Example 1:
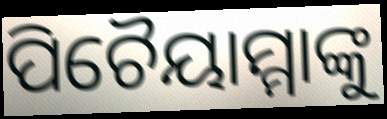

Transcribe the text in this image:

ପିଚୈୟାମ୍ମାଙ୍କୁ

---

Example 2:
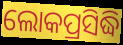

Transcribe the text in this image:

ଲୋକପ୍ରସିଦ୍ଧି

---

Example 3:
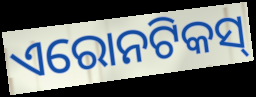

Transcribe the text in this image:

ଏରୋନଟିକସ୍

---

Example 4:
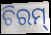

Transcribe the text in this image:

ଚିରମ୍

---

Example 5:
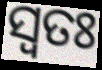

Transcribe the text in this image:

ସ୍ଵତଃ